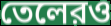
তেলেরও